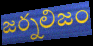
జర్నలిజం